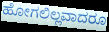
ಹೋಗಲಿಲ್ಲವಾದರೂ